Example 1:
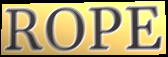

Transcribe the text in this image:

ROPE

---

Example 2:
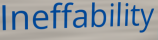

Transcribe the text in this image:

Ineffability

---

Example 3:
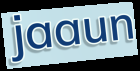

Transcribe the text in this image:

jaaun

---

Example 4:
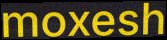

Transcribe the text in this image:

moxesh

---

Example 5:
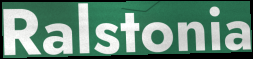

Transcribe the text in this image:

Ralstonia